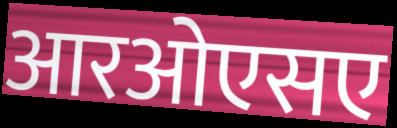
आरओएसए